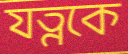
যত্নকে